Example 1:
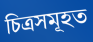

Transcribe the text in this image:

চিত্ৰসমূহত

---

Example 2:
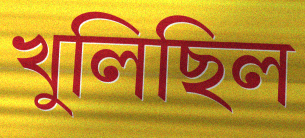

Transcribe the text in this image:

খুলিছিল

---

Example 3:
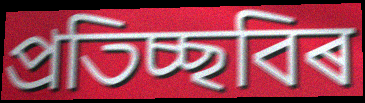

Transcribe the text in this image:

প্ৰতিচ্ছবিৰ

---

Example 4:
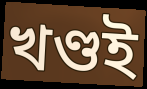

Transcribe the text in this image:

খণ্ডই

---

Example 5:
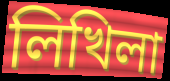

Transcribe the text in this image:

লিখিলা